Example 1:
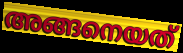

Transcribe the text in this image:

അങ്ങനെയത്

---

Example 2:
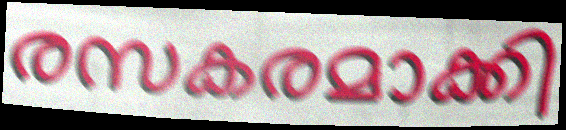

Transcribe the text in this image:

രസകരമാക്കി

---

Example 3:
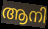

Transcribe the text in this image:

ആനി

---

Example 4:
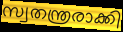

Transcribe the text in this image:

സ്വതന്ത്രരാക്കി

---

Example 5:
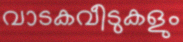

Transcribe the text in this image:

വാടകവീടുകളും